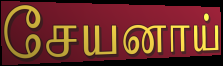
சேயனாய்